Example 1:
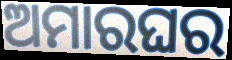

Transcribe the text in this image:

ଅମାରଘର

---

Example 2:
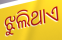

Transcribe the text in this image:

ଝୁଲିଥାଏ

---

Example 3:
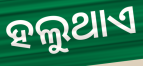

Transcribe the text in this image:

ହଲୁଥାଏ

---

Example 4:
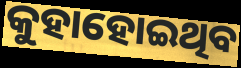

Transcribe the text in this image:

କୁହାହୋଇଥିବ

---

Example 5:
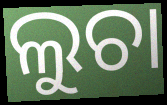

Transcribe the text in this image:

ଲୁଚା